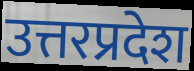
उत्तरप्रदेश